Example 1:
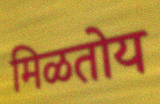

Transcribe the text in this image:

मिळतोय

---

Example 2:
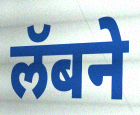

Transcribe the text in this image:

लॅबने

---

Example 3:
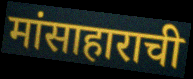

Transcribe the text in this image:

मांसाहाराची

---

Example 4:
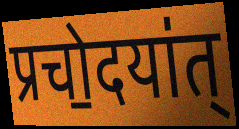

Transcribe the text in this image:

प्रचो॒दया॑त्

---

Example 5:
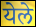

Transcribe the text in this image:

येले